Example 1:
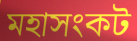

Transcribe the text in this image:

মহাসংকট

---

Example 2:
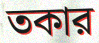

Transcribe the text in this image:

তকার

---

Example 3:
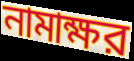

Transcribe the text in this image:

নামাক্ষর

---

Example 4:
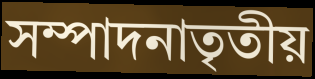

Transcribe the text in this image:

সম্পাদনাতৃতীয়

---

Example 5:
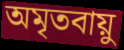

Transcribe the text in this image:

অমৃতবায়ু